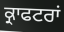
ਕ੍ਰਾਫਟਰਾਂ